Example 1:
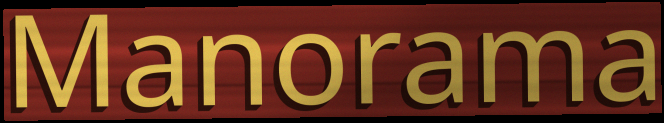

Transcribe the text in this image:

Manorama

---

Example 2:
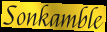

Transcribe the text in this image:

Sonkamble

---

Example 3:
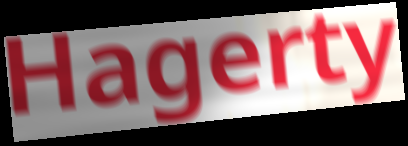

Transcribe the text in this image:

Hagerty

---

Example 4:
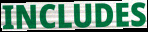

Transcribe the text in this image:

INCLUDES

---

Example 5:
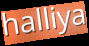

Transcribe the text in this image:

halliya